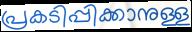
പ്രകടിപ്പിക്കാനുള്ള